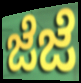
ಜೆಜೆ